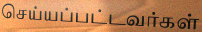
செய்யப்பட்டவர்கள்